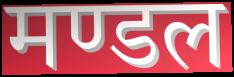
मण्डल